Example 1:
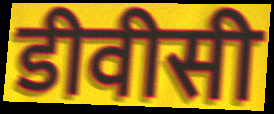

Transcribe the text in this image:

डीवीसी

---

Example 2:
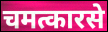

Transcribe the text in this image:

चमत्कारसे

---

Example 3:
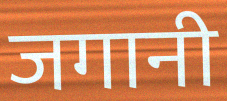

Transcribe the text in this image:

जगानी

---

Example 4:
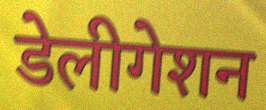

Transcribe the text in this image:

डेलीगेशन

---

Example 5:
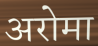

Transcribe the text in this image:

अरोमा